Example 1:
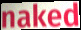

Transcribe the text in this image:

naked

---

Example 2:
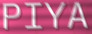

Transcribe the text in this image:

PIYA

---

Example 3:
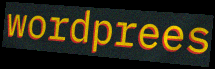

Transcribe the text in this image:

wordprees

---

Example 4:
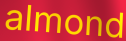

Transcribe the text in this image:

almond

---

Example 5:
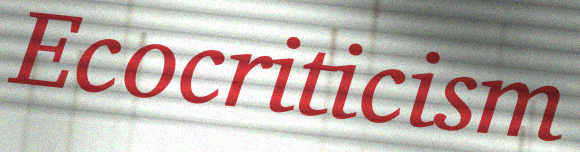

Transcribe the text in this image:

Ecocriticism